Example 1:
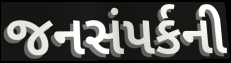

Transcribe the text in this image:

જનસંપર્કની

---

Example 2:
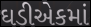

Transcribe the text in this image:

ઘડીએકમાં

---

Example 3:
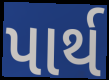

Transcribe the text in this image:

પાર્થ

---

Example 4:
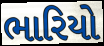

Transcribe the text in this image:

ભારિયો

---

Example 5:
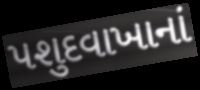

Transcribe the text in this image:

પશુદવાખાનાં